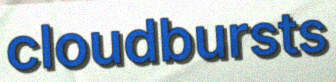
cloudbursts